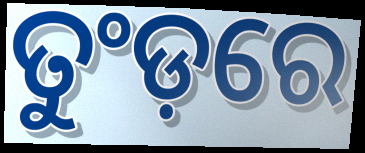
ତୁଂଡ଼ରେ